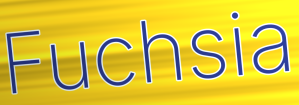
Fuchsia